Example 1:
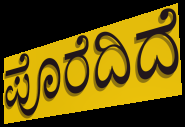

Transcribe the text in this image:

ಪೊರೆದಿದೆ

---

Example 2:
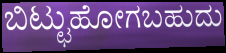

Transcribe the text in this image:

ಬಿಟ್ಟುಹೋಗಬಹುದು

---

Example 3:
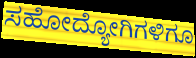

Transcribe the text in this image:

ಸಹೋದ್ಯೋಗಿಗಳಿಗೂ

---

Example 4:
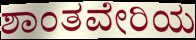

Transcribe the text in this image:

ಶಾಂತವೇರಿಯ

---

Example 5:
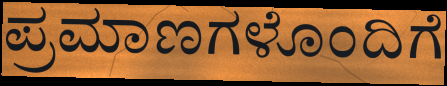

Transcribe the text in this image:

ಪ್ರಮಾಣಗಳೊಂದಿಗೆ